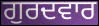
ਗੁਰਦਵਾਰ